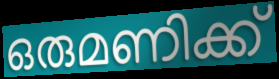
ഒരുമണിക്ക്